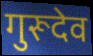
गुरूदेव